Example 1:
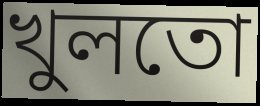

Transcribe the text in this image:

খুলতো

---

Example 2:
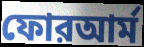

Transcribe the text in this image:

ফোরআর্ম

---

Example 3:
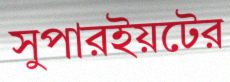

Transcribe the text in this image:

সুপারইয়টের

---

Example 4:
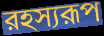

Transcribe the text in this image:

রহস্যরূপ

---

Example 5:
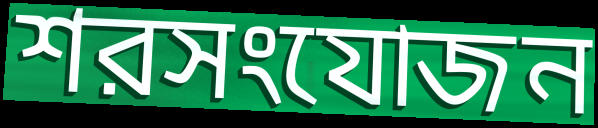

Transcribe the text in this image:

শরসংযোজন